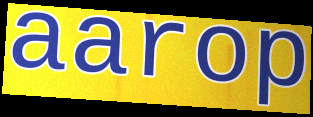
aarop